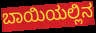
ಬಾಯಿಯಲ್ಲಿನ